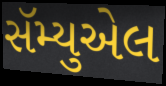
સૅમ્યુએલ